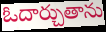
ఓదార్చుతాను